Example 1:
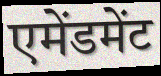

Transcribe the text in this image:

एमेंडमेंट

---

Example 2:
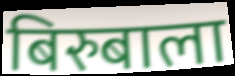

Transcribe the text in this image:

बिरुबाला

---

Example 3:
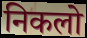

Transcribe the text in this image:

निकलो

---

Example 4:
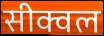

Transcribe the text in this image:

सीक्वल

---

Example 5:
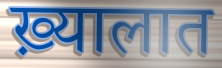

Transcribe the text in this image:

ख़्यालात